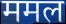
ममल